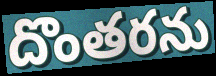
దొంతరను